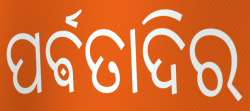
ପର୍ଵତାଦିର